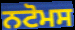
ਨਟੋਮਸ